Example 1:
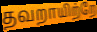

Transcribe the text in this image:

தவறாயிற்றே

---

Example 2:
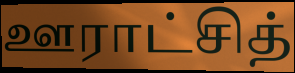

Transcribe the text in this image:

ஊராட்சித்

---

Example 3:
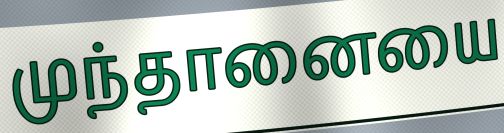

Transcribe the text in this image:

முந்தானையை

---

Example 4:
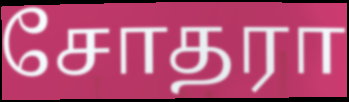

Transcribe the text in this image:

சோதரா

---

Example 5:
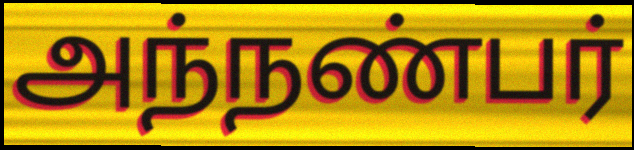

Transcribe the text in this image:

அந்நண்பர்